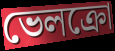
ভেলক্রো